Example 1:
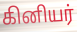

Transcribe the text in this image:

கினியர்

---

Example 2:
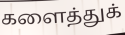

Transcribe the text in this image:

களைத்துக்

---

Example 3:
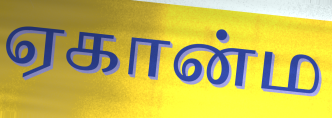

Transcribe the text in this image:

ஏகான்ம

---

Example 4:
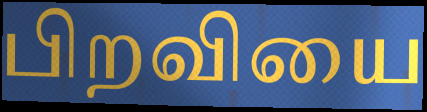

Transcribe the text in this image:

பிறவியை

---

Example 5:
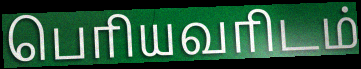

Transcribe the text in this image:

பெரியவரிடம்